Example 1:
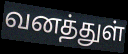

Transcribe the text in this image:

வனத்துள்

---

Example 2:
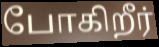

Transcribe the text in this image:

போகிறீர்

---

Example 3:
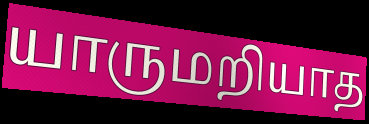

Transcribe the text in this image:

யாருமறியாத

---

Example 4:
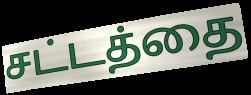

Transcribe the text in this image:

சட்டத்தை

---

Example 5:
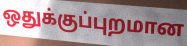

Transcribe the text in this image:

ஒதுக்குப்புறமான